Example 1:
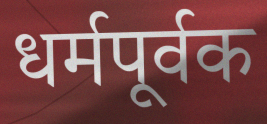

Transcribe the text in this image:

धर्मपूर्वक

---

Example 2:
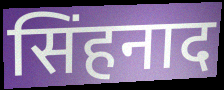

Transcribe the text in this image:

सिंहनाद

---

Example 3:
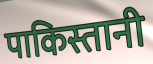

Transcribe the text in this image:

पाकिस्‍तानी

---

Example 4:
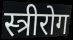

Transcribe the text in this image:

स्त्रीरोग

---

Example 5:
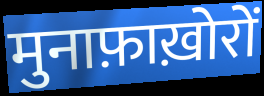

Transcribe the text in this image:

मुनाफ़ाख़ोरों